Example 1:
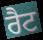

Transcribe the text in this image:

ਰੈਟ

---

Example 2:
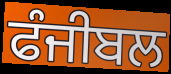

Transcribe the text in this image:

ਫੰਜੀਬਲ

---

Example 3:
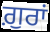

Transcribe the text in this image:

ਗ਼ੁਰਾਂ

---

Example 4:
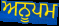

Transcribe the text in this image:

ਅਨੂਪਮ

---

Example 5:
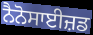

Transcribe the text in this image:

ਨੈਨੋਸਾਈਜ਼ਡ